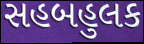
સહબહુલક